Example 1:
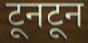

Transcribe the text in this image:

टूनटून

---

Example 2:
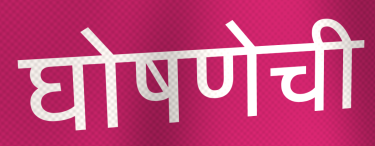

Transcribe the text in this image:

घोषणेची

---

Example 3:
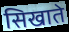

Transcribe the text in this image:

सिखाते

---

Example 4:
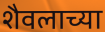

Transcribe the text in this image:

शैवलाच्या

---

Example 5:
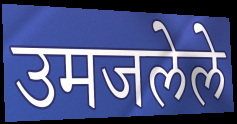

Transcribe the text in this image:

उमजलेले